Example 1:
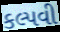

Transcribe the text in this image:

કલ્પવી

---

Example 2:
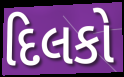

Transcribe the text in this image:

દિલકો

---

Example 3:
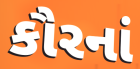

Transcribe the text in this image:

કૌરનાં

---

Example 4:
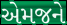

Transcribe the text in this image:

એમજને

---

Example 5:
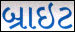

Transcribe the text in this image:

બ્રાઇટ